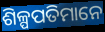
ଶିଳ୍ପପତିମାନେ